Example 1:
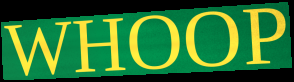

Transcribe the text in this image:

WHOOP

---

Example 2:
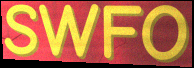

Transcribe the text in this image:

SWFO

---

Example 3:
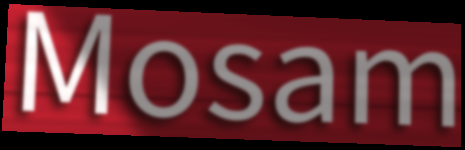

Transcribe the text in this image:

Mosam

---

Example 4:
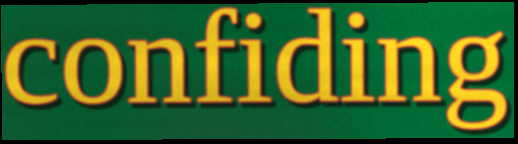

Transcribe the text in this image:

confiding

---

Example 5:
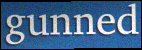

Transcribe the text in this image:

gunned